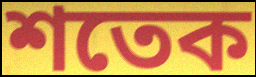
শতেক